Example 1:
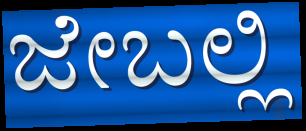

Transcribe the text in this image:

ಜೇಬಲ್ಲಿ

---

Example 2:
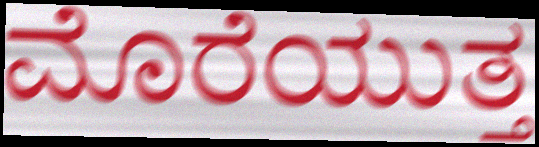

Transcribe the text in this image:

ಮೊರೆಯುತ್ತ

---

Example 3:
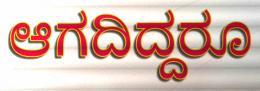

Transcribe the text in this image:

ಆಗದಿದ್ದರೂ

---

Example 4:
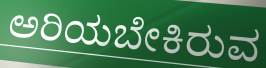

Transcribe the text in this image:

ಅರಿಯಬೇಕಿರುವ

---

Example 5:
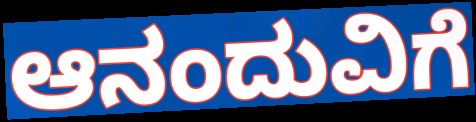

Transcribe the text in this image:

ಆನಂದುವಿಗೆ